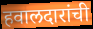
हवालदारांची